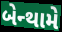
બેન્થામે